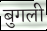
बुगली